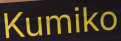
Kumiko